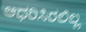
ಆಧರಿಸಿರಲಿಲ್ಲ